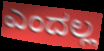
ಎಂದಲ್ಲ